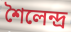
শৈলেন্দ্ৰ